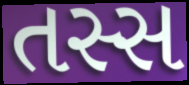
તસ્સ